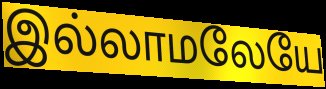
இல்லாமலேயே